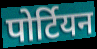
पोर्टियन